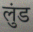
लुंड